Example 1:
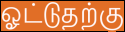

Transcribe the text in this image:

ஓட்டுதற்கு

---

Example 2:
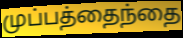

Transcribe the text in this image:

முப்பத்தைந்தை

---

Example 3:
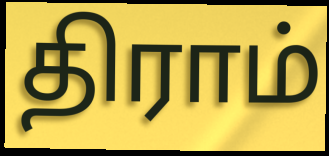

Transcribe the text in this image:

திராம்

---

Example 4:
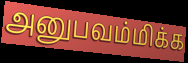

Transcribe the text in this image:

அனுபவம்மிக்க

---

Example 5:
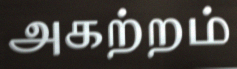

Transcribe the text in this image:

அகற்றம்